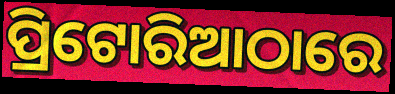
ପ୍ରିଟୋରିଆଠାରେ